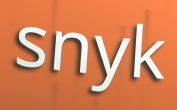
snyk